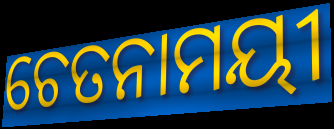
ଚେତନାମୟୀ